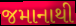
જમાનાથી